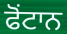
ਫੋਂਟਾਨ